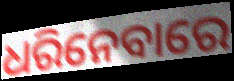
ଧରିନେବାରେ